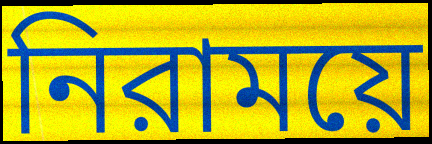
নিরাময়ে